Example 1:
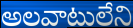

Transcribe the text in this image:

అలవాటులేని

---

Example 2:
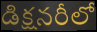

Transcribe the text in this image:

డిక్షనరీలో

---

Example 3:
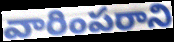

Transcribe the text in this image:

వారింపరాని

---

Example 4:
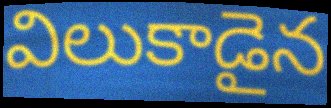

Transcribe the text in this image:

విలుకాడైన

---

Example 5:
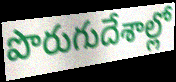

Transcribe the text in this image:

పొరుగుదేశాల్లో